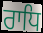
ਰਾਧਿ